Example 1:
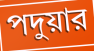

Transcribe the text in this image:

পদুয়ার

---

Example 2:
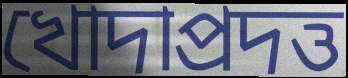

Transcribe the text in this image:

খোদাপ্রদত্ত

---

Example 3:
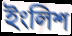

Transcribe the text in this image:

ইংলিশ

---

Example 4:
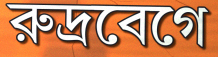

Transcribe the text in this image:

রুদ্রবেগে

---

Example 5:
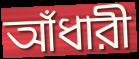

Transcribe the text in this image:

আঁধারী